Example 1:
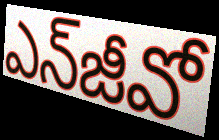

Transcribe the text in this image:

ఎన్‌జీవో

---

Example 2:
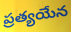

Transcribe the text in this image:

ప్రత్యయేన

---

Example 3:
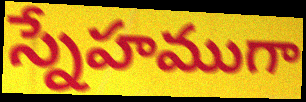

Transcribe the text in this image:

స్నేహముగా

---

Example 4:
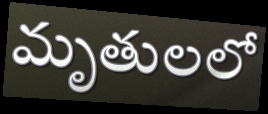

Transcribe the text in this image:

మృతులలో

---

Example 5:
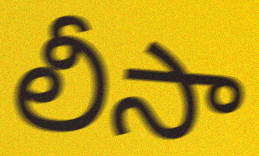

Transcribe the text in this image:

లీసా